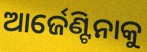
ଆର୍ଜେଣ୍ଟିନାକୁ